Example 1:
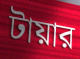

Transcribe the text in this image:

টায়ার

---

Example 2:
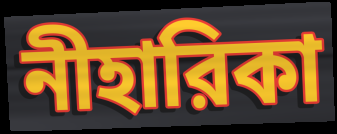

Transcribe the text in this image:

নীহারিকা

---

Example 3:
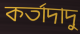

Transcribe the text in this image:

কর্তাদাদু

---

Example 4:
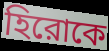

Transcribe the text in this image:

হিরোকে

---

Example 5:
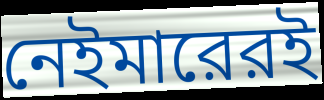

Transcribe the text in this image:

নেইমারেরই